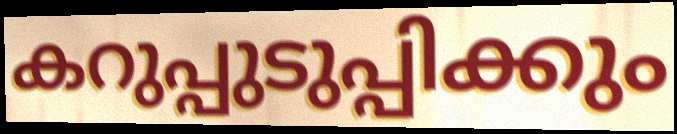
കറുപ്പുടുപ്പിക്കും